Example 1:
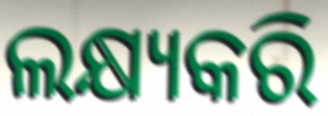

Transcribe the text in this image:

ଲକ୍ଷ୍ୟକରି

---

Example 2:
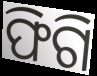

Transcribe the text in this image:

ଫିଗି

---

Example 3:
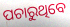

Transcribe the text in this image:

ପଚାରୁଥିବେ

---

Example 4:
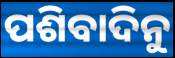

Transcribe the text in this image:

ପଶିବାଦିନୁ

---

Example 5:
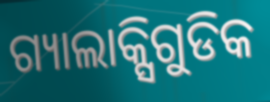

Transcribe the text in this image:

ଗ୍ୟାଲାକ୍ସିଗୁଡିକ